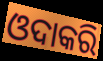
ଓଦାକରି